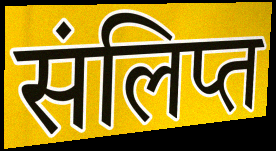
संलिप्त